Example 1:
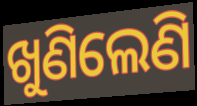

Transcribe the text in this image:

ଖୁଣିଲେଣି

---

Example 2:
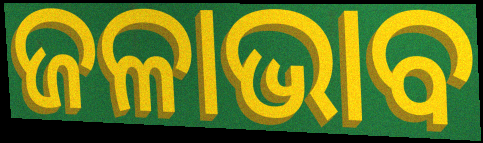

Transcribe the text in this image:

ଜଳାଭାବ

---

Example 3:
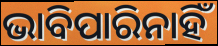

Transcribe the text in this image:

ଭାବିପାରିନାହିଁ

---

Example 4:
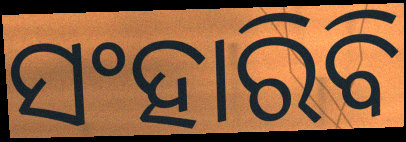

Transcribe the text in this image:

ସଂହାରିବି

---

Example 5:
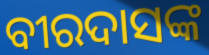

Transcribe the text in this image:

ବୀରଦାସଙ୍କ